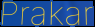
Prakar